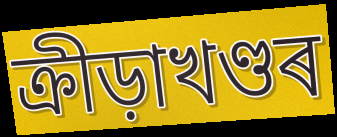
ক্ৰীড়াখণ্ডৰ